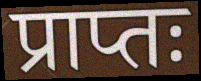
प्राप्तः